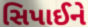
સિપાઈને